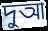
দুআ